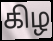
கிழ